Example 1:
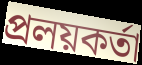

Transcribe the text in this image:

প্রলয়কর্তা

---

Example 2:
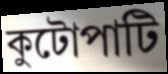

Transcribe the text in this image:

কুটোপাটি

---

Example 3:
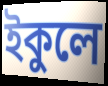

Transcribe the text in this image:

ইকুলে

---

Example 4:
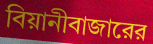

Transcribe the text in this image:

বিয়ানীবাজারের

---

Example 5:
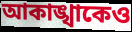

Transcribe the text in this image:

আকাঙ্খাকেও